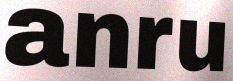
anru